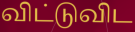
விட்டுவிட